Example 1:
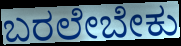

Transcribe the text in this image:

ಬರಲೇಬೇಕು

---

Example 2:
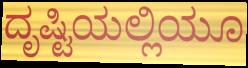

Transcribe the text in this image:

ದೃಷ್ಟಿಯಲ್ಲಿಯೂ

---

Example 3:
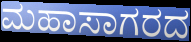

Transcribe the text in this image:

ಮಹಾಸಾಗರದ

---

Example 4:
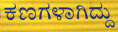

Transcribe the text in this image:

ಕಣಗಳಾಗಿದ್ದು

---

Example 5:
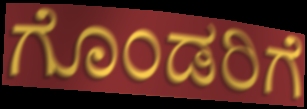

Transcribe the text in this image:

ಗೊಂಡರಿಗೆ